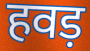
हवड़